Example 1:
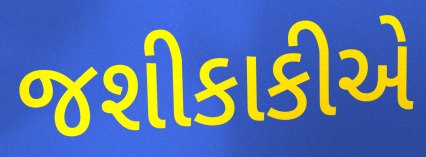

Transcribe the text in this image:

જશીકાકીએ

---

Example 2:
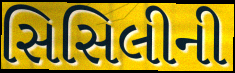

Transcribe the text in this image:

સિસિલીની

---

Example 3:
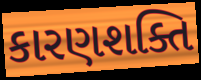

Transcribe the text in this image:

કારણશક્તિ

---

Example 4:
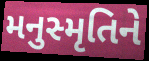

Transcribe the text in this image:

મનુસ્મૃતિને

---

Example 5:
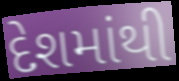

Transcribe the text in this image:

દેશમાંથી